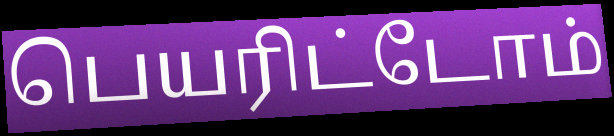
பெயரிட்டோம்